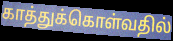
காத்துக்கொள்வதில்